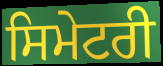
ਸਿਮੇਟਰੀ